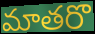
మాతరొ